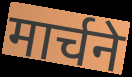
मार्चने